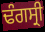
ਢੰਗਸ੍ਰੀ